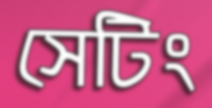
সেটিং